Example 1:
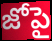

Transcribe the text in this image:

జోపై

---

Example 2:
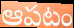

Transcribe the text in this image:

ఆపటం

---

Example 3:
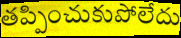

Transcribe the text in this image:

తప్పించుకుపోలేదు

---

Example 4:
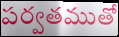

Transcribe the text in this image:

పర్వతముతో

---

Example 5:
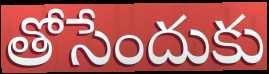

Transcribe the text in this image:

తోసేందుకు